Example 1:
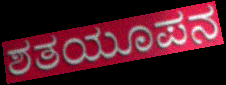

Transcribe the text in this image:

ಶತಯೂಪನ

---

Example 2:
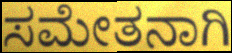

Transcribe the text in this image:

ಸಮೇತನಾಗಿ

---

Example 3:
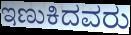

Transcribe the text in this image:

ಇಣುಕಿದವರು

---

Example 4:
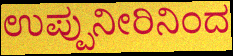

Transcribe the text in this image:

ಉಪ್ಪುನೀರಿನಿಂದ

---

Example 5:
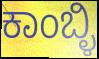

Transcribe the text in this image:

ಕಾಂಬ್ಳಿ